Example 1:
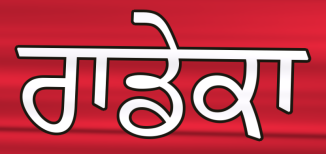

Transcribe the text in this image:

ਰਾਡੇਕਾ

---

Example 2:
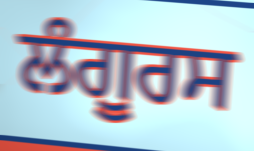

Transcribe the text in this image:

ਲੰਗੂਰਸ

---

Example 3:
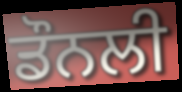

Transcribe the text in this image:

ਡੌਨਲੀ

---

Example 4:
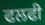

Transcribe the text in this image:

ਫਲਫੀ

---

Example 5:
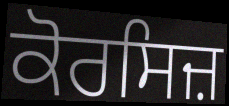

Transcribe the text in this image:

ਕੋਰਸਿਜ਼